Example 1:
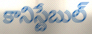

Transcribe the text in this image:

కానిస్టేబుల్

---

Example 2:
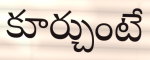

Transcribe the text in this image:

కూర్చుంటే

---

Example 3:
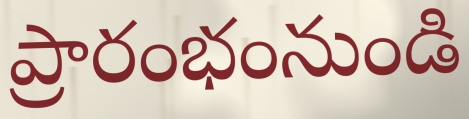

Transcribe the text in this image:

ప్రారంభంనుండి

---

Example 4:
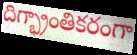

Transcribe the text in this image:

దిగ్భ్రాంతికరంగా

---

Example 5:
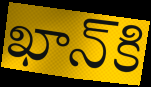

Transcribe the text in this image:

ఖాన్‌కి